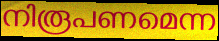
നിരൂപണമെന്ന